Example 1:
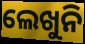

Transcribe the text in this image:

ଲେଖୁନି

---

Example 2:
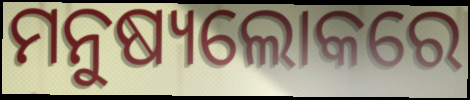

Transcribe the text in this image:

ମନୁଷ୍ୟଲୋକରେ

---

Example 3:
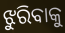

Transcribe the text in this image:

ଝୁରିବାକୁ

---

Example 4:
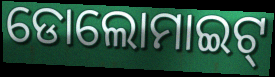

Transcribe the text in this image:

ଡୋଲୋମାଇଟ୍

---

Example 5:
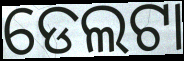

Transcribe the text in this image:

ଡେଲଟା